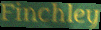
Finchley